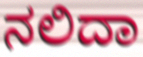
ನಲಿದಾ